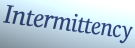
Intermittency